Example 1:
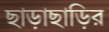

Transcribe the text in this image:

ছাড়াছাড়ির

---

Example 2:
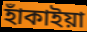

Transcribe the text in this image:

হাঁকাইয়া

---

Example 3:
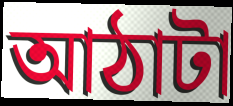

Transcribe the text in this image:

আঠাটা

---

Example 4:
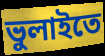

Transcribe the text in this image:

ভুলাইতে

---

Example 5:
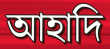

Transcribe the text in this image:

আহাদি